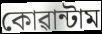
কোৱান্টাম